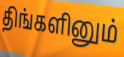
திங்களினும்